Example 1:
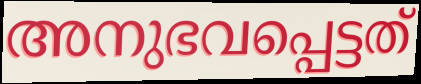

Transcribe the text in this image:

അനുഭവപ്പെട്ടത്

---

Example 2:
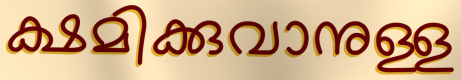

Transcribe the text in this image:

ക്ഷമിക്കുവാനുള്ള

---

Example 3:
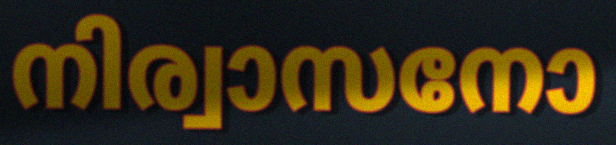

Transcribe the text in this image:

നിര്വാസനോ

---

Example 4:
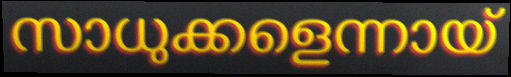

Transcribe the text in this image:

സാധുക്കളെന്നായ്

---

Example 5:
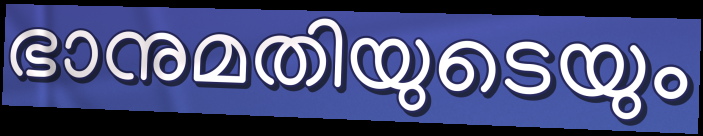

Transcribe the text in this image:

ഭാനുമതിയുടെയും